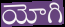
యోగి